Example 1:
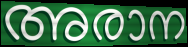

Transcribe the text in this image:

അരാന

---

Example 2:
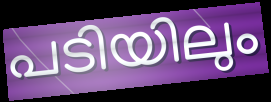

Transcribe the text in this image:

പടിയിലും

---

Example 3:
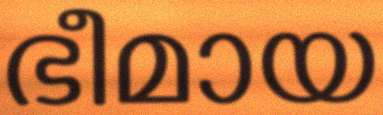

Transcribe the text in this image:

ഭീമായ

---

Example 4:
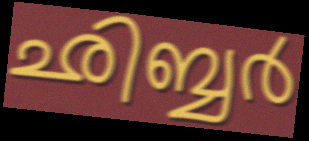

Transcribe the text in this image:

ഛിബ്ബർ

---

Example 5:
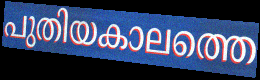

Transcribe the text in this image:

പുതിയകാലത്തെ